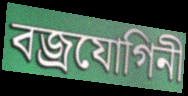
বজ্রযোগিনী